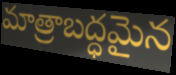
మాత్రాబద్ధమైన